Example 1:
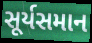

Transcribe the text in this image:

સૂર્યસમાન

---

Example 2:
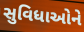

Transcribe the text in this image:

સુવિધાઓને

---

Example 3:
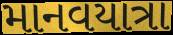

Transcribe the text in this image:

માનવયાત્રા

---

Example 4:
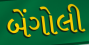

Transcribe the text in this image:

બેંગોલી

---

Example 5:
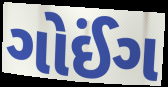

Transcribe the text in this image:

ગોઈંગ